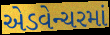
એડવેન્ચરમાં